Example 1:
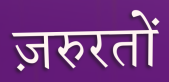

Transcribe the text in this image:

ज़रुरतों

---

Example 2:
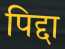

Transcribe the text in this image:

पिद्दा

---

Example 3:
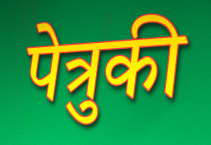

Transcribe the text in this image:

पेत्रुकी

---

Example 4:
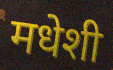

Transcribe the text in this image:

मधेशी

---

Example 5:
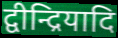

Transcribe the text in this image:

द्वीन्द्रियादि